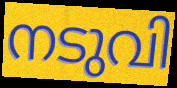
നടുവി